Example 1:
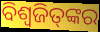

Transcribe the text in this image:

ବିଶ୍ଵଜିତ୍‌ଙ୍କର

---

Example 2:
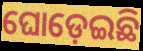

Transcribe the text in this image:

ଘୋଡ଼େଇଛି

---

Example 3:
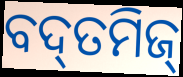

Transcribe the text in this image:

ବଦ୍‌ତମିଜ୍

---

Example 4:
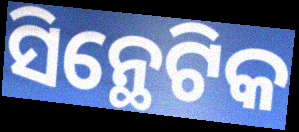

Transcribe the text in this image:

ସିନ୍ଥେଟିକ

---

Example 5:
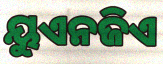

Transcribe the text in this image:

ୟୁଏନଜିଏ